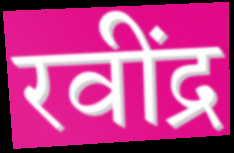
रवींद्र